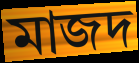
মাজদ